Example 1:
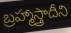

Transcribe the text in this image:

బ్రహ్మాస్త్రాదీని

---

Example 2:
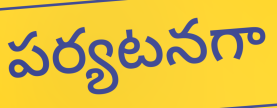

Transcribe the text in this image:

పర్యటనగా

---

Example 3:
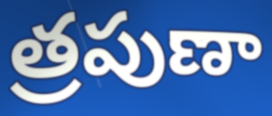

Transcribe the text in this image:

త్రపుణా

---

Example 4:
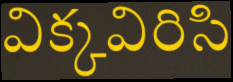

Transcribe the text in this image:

విక్కవిరిసి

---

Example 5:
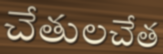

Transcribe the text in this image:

చేతులచేత